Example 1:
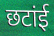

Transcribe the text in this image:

छटांई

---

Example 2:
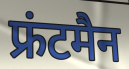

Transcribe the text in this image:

फ्रंटमैन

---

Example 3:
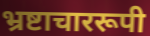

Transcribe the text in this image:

भ्रष्टाचाररूपी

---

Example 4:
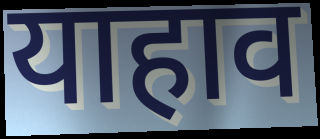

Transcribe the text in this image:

याहाव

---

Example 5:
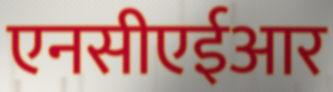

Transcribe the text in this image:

एनसीएईआर